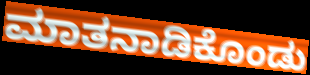
ಮಾತನಾಡಿಕೊಂಡು